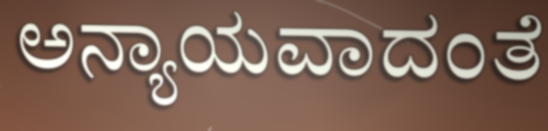
ಅನ್ಯಾಯವಾದಂತೆ